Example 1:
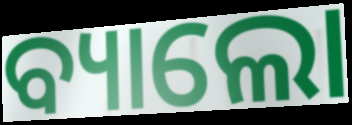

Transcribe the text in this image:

ବ୍ୟାଲୋ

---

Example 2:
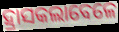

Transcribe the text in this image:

ହ୍ରାସକଲାବେଳେ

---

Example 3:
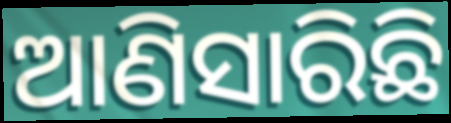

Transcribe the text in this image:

ଆଣିସାରିଛି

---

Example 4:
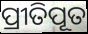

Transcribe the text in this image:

ପ୍ରୀତିପୂତ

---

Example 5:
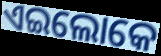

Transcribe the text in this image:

ଏଇଲୋକେ